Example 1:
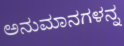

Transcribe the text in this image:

ಅನುಮಾನಗಳನ್ನ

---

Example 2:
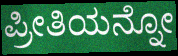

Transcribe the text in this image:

ಪ್ರೀತಿಯನ್ನೋ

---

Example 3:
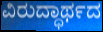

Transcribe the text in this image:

ವಿರುದ್ಧಾರ್ಥದ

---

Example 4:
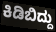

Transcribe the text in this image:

ಕಿಡಿಬಿದ್ದು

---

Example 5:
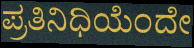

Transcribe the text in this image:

ಪ್ರತಿನಿಧಿಯೆಂದೇ